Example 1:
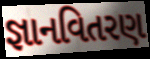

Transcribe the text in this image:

જ્ઞાનવિતરણ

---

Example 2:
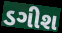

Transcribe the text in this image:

ડગીશ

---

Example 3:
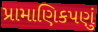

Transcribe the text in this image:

પ્રામાણિકપણું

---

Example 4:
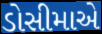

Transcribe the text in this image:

ડોસીમાએ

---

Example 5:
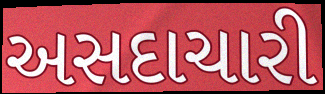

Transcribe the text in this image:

અસદાચારી